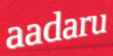
aadaru